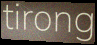
tirong